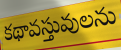
కథావస్తువులను